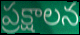
ప్రక్షాలన